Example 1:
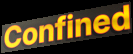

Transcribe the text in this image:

Confined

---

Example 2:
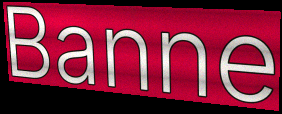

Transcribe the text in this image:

Banne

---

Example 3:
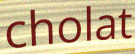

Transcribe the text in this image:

cholat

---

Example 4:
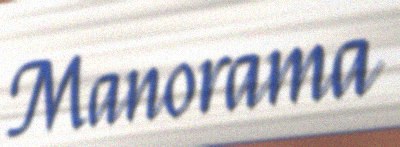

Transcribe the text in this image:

Manorama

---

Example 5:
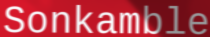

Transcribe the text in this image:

Sonkamble